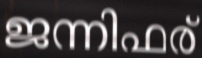
ജന്നിഫര്